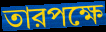
তারপক্ষে